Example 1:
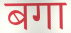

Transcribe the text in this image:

बगा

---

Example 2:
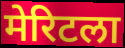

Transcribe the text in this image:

मेरिटला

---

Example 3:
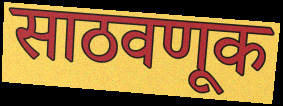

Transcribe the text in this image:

साठवणूक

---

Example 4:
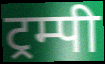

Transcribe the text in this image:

ट्रम्पी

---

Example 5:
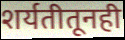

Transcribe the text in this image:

शर्यतीतूनही